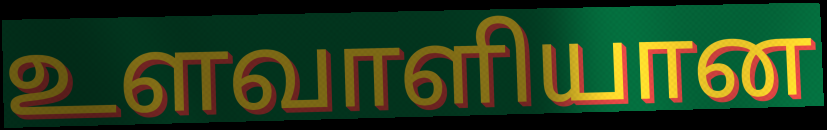
உளவாளியான